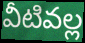
వీటివల్ల